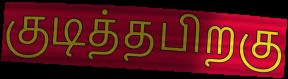
குடித்தபிறகு